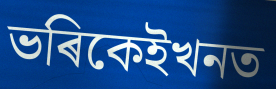
ভৰিকেইখনত